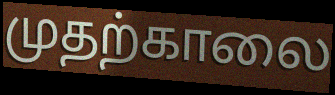
முதற்காலை